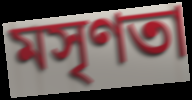
মসৃণতা